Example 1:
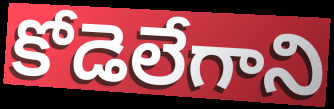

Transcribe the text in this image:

కోడెలేగాని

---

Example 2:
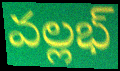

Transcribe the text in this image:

వల్లభ్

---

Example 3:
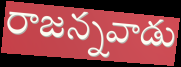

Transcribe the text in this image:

రాజన్నవాడు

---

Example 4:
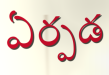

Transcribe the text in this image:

ఏర్పడ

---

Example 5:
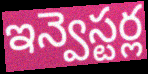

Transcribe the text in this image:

ఇన్వెస్టర్ల